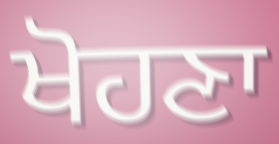
ਖੋਹਣਾ